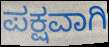
ಪಕ್ಷವಾಗಿ